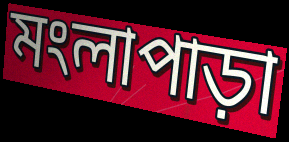
মংলাপাড়া